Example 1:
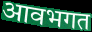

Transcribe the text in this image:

आवभगत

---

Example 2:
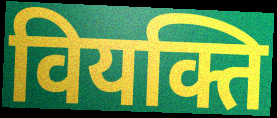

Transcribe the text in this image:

वियक्ति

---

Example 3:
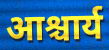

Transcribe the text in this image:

आश्चार्य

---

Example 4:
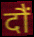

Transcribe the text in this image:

दौं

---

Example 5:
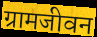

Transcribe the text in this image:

ग्रामजीवन